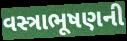
વસ્ત્રાભૂષણની